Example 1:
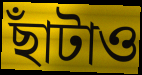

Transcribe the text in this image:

ছাঁটাও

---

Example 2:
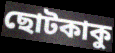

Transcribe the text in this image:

ছোটকাকু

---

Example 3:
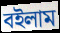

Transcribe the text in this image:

বইলাম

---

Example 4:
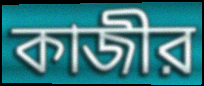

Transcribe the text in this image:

কাজীর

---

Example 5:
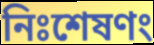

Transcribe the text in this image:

নিঃশেষণং